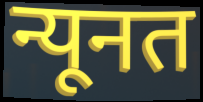
न्यूनत